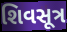
શિવસૂત્ર